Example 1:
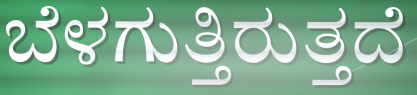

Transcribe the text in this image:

ಬೆಳಗುತ್ತಿರುತ್ತದೆ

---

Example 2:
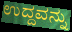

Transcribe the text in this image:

ಉದ್ದವನ್ನು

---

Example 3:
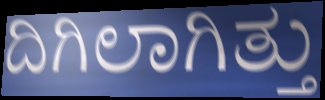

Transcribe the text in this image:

ದಿಗಿಲಾಗಿತ್ತು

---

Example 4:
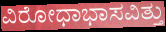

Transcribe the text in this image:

ವಿರೋಧಾಭಾಸವಿತ್ತು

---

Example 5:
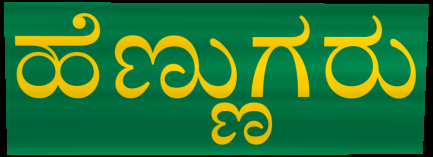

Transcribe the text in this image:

ಹೆಣ್ಣುಗರು